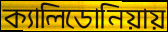
ক্যালিডোনিয়ায়